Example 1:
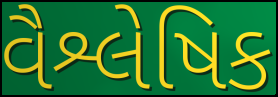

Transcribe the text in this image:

વૈશ્લેષિક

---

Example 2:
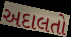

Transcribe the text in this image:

અદાલતો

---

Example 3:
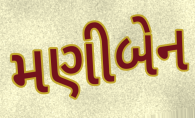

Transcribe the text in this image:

મણીબેન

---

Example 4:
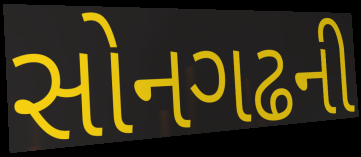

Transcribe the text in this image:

સોનગઢની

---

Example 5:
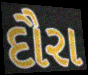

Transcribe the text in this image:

દૌરા